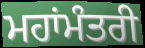
ਮਹਾਂਮੰਤਰੀ